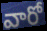
వారో